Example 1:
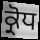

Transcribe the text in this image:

ਕ੍ਰੋਧ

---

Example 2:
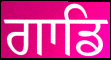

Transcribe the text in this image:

ਗਾਡਿ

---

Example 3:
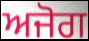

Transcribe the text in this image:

ਅਜੋਗ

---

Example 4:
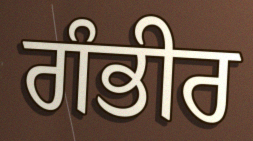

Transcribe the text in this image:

ਗੰਭੀਰ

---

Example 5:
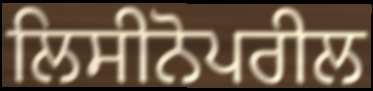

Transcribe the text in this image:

ਲਿਸੀਨੋਪਰੀਲ